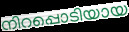
നിറപ്പൊടിയായ